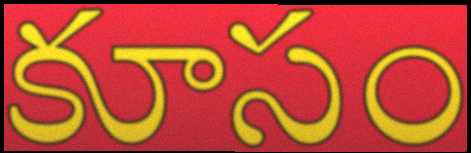
కూసం